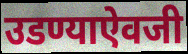
उडण्याऐवजी